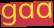
gaa